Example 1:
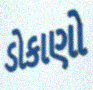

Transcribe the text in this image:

ડોકાણો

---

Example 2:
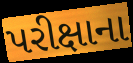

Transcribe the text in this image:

પરીક્ષાના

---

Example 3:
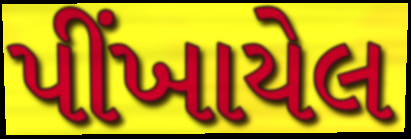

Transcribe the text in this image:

પીંખાયેલ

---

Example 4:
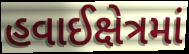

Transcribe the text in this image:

હવાઈક્ષેત્રમાં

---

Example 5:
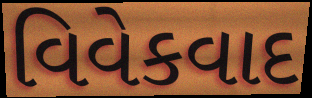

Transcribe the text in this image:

વિવેકવાદ